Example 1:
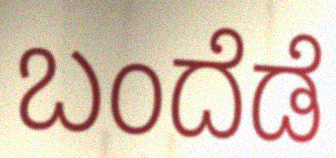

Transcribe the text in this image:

ಬಂದೆಡೆ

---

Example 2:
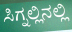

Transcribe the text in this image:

ಸಿಗ್ನಲ್ಲಿನಲ್ಲಿ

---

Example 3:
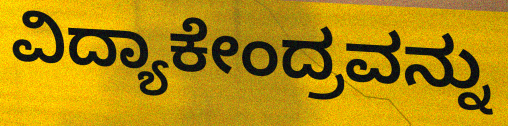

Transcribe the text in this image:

ವಿದ್ಯಾಕೇಂದ್ರವನ್ನು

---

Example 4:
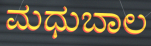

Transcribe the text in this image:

ಮಧುಬಾಲ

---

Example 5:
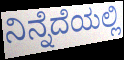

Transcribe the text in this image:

ನಿನ್ನೆದೆಯಲ್ಲಿ